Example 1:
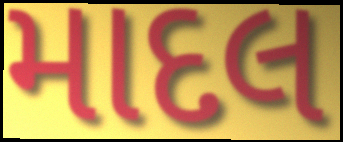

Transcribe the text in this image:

માદલ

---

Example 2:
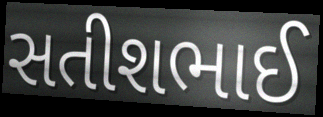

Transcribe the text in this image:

સતીશભાઈ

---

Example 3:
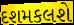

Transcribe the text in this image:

દશમકલશે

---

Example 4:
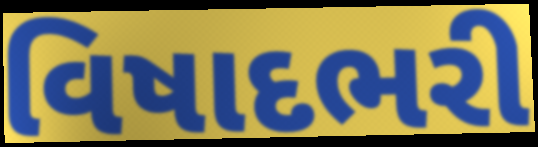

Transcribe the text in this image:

વિષાદભરી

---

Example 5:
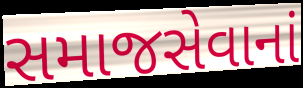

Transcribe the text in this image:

સમાજસેવાનાં